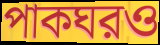
পাকঘরও